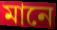
মানে